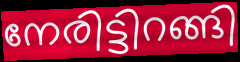
നേരിട്ടിറങ്ങി